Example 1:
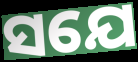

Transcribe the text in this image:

ସଯେ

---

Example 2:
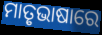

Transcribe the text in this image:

ମାତୃଭାଷାରେ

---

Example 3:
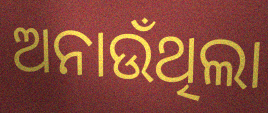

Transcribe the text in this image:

ଅନାଉଁଥିଲା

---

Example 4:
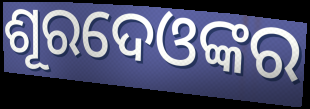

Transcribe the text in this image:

ଶୂରଦେଓଙ୍କର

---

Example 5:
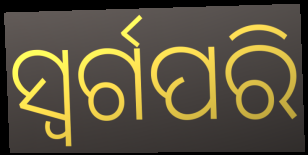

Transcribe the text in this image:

ସ୍ୱର୍ଗପରି